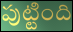
పుట్టింది